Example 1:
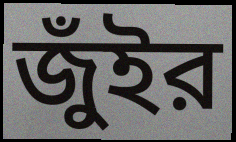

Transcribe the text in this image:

জুঁইর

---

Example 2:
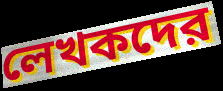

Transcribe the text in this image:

লেখকদের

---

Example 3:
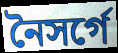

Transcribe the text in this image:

নৈসর্গে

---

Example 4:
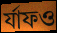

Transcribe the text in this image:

র্যাফও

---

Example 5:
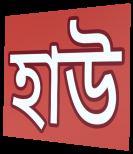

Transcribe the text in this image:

হাউ